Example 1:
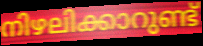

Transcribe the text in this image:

നിഴലിക്കാറുണ്ട്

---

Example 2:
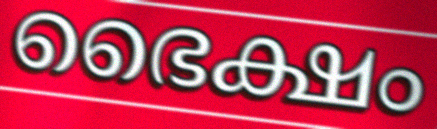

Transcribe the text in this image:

ഭൈക്ഷം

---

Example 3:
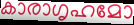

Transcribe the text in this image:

കാരാഗൃഹമോ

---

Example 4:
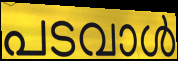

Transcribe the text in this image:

പടവാൾ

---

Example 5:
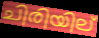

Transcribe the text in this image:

ചിരിയില്